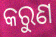
କରୁଣ